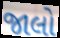
જાલો